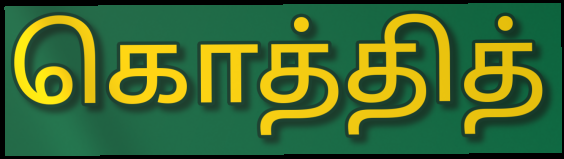
கொத்தித்